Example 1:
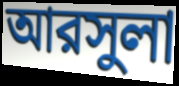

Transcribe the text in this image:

আরসুলা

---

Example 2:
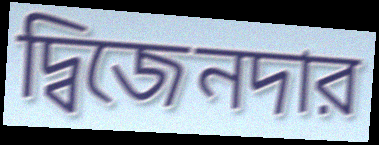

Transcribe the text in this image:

দ্বিজেনদার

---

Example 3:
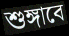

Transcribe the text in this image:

শুঙ্গাবে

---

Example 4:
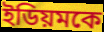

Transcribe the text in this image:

ইডিয়মকে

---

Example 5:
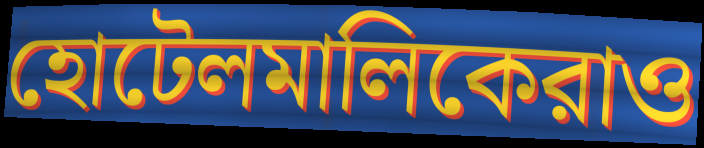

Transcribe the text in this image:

হোটেলমালিকেরাও